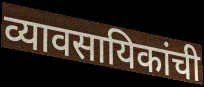
व्यावसायिकांची